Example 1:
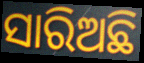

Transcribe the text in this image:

ସାରିଅଛି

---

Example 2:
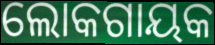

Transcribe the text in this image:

ଲୋକଗାୟକ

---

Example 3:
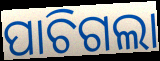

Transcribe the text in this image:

ପାଚିଗଲା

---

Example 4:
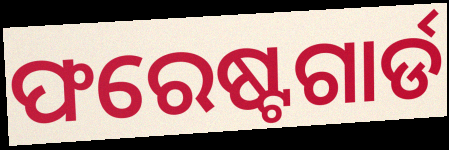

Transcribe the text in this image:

ଫରେଷ୍ଟଗାର୍ଡ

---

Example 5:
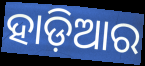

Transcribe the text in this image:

ହାଡ଼ିଆର